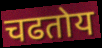
चढतोय